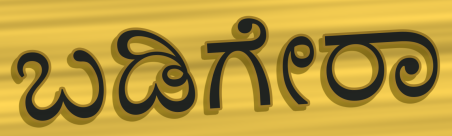
ಬಡಿಗೇರಾ